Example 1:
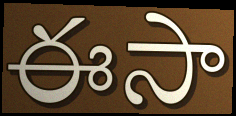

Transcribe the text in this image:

ఈసా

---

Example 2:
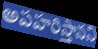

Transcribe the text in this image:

అపహరిస్తానని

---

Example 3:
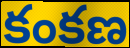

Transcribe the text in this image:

కంకణ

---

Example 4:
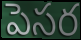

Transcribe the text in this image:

పెసర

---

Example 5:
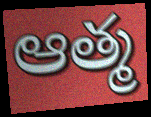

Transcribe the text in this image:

ఆత్మ